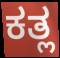
ಕತ್ಲ